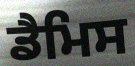
ਡੈਮਿਸ